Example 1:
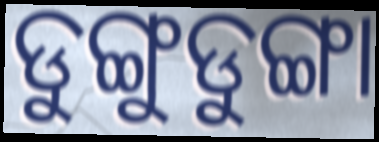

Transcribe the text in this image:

ଡୁଙ୍ଗୁଡୁଙ୍ଗା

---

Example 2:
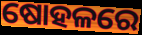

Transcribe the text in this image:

ଷୋହଳରେ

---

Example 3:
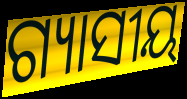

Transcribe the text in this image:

ଗ୍ୟାସୀୟ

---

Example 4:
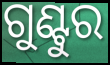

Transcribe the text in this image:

ଗୁଣ୍ଟୁର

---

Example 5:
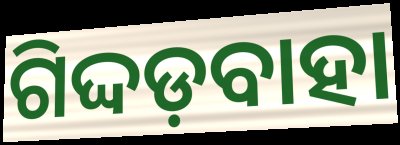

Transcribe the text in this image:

ଗିଦ୍ଦଡ଼ବାହା